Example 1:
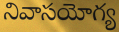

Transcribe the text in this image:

నివాసయోగ్య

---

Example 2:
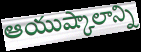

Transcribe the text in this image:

ఆయుష్కాలాన్ని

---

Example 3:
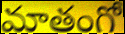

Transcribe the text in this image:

మాతంగో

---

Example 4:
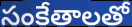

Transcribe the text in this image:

సంకేతాలతో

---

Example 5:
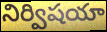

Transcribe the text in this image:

నిర్విషయా